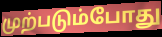
முற்படும்போது